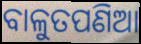
ବାଳୁତପଣିଆ